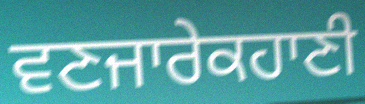
ਵਣਜਾਰੇਕਹਾਣੀ